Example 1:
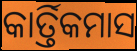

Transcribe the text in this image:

କାର୍ତ୍ତିକମାସ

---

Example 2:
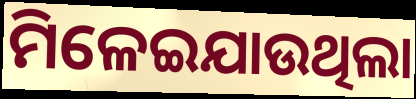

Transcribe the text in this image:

ମିଳେଇଯାଉଥିଲା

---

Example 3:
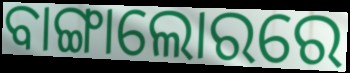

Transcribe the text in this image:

ବାଙ୍ଗାଲୋରରେ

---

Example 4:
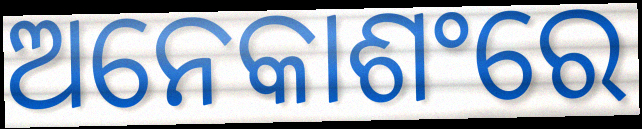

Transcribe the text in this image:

ଅନେକାଶଂରେ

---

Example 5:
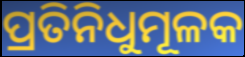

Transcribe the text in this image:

ପ୍ରତିନିଧୁମୂଳକ